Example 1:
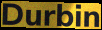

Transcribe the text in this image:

Durbin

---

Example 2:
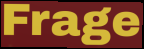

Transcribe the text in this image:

Frage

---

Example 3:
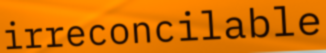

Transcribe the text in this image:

irreconcilable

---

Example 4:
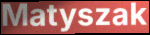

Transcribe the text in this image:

Matyszak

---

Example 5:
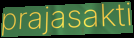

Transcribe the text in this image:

prajasakti